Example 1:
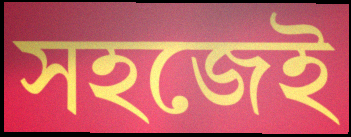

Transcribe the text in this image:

সহজেই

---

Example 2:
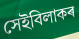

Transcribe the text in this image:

সেইবিলাকৰ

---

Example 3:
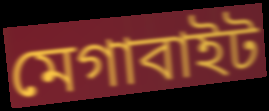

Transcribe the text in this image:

মেগাবাইট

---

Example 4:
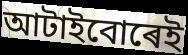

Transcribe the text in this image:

আটাইবোৰেই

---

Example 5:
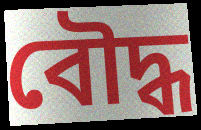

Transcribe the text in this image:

বৌদ্ধ